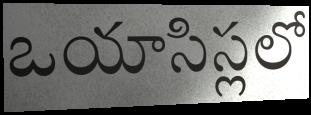
ఒయాసిస్లలో